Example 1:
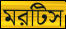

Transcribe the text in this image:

মরটিস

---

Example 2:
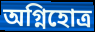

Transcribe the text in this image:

অগ্নিহোত্র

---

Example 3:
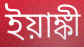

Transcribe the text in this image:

ইয়াঙ্কী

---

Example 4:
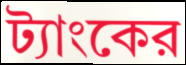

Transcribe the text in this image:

ট্যাংকের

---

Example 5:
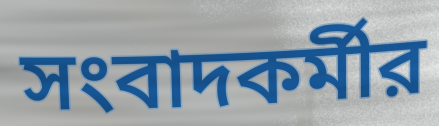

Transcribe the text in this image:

সংবাদকর্মীর